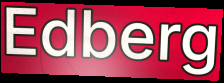
Edberg